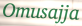
Omusajja